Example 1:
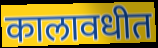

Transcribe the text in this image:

कालावधीत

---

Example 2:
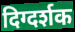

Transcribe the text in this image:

दिग्दर्शक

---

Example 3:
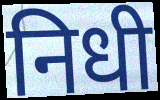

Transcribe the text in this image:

निधी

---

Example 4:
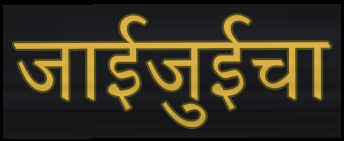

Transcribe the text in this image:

जाईजुईचा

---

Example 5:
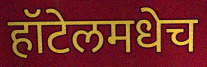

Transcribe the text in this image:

हॉटेलमधेच